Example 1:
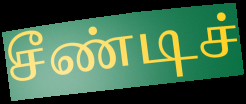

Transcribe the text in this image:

சீண்டிச்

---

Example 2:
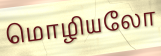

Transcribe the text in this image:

மொழியலோ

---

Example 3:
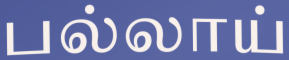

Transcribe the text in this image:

பல்லாய்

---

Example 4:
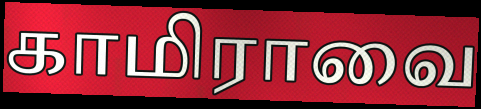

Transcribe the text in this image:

காமிராவை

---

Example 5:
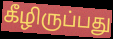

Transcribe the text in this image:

கீழிருப்பது